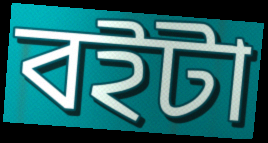
বইটা